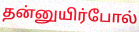
தன்னுயிர்போல்